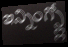
ఇన్నింగ్స్ల్లో